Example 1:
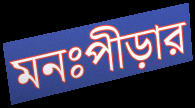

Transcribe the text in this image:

মনঃপীড়ার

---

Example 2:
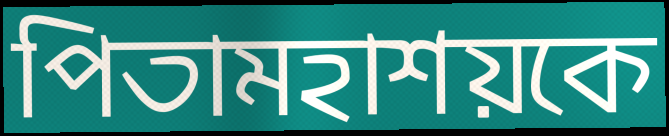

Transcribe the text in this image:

পিতামহাশয়কে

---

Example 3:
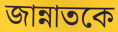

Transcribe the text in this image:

জান্নাতকে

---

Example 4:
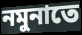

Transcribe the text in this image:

নমুনাতে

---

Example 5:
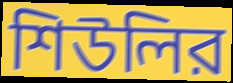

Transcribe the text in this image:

শিউলির